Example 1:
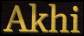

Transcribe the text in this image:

Akhi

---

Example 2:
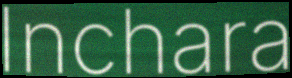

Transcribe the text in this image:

Inchara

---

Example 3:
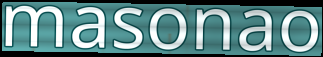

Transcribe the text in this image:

masonao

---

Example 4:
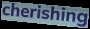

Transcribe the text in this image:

cherishing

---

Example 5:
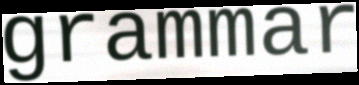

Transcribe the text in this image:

grammar